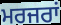
ਮਰਜਰਾਂ